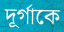
দূর্গাকে